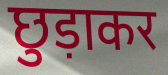
छुड़ाकर